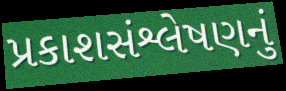
પ્રકાશસંશ્લેષણનું